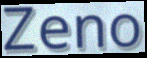
Zeno